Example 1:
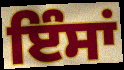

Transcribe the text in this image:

ਇੰਸਾਂ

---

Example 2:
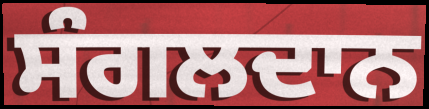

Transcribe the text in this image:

ਸੰਗਲਦਾਨ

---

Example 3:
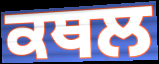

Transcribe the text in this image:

ਕਥਲ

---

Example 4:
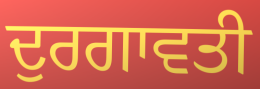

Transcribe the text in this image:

ਦੁਰਗਾਵਤੀ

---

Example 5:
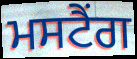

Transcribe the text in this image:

ਮਸਟੈਂਗ